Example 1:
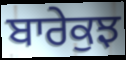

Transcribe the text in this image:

ਬਾਰੇਕੁਝ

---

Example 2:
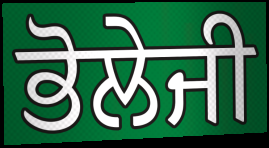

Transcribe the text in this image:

ਭੋਲੇਜੀ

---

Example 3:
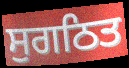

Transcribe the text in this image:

ਸੁਗਠਿਤ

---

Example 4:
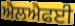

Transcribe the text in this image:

ਐਲਐਫਈ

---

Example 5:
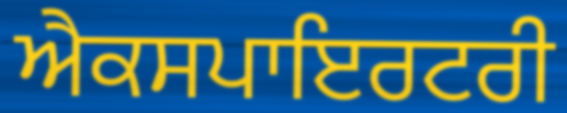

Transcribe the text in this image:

ਐਕਸਪਾਇਰਟਰੀ